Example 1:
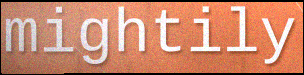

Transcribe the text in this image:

mightily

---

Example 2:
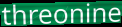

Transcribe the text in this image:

threonine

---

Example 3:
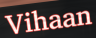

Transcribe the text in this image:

Vihaan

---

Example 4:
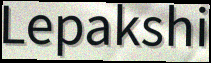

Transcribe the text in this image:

Lepakshi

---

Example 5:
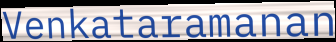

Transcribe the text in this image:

Venkataramanan